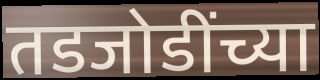
तडजोडींच्या